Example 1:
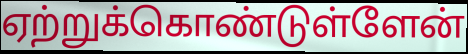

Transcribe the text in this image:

ஏற்றுக்கொண்டுள்ளேன்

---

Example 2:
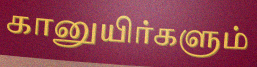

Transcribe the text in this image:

கானுயிர்களும்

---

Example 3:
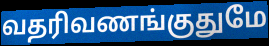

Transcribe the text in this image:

வதரிவணங்குதுமே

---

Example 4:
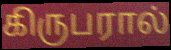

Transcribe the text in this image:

கிருபரால்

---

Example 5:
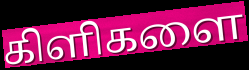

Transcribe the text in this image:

கிளிகளை